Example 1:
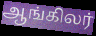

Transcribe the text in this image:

ஆங்கிலர்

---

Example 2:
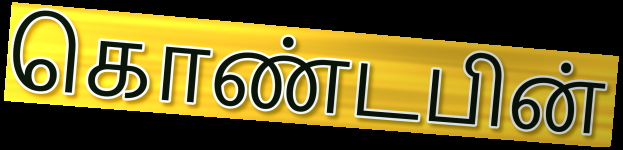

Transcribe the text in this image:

கொண்டபின்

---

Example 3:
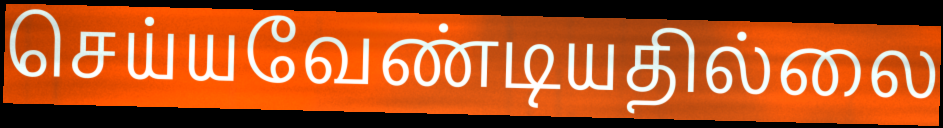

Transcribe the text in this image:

செய்யவேண்டியதில்லை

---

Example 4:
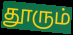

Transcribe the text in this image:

தூரும்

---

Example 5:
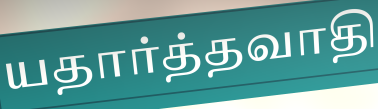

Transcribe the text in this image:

யதார்த்தவாதி